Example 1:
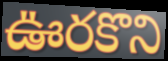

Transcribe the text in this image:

ఊరకొని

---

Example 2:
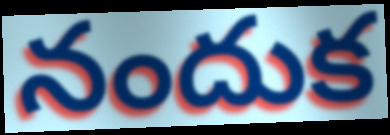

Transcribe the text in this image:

నందుక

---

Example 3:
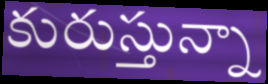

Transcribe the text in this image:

కురుస్తున్నా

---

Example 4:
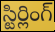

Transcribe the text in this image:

స్టిర్లింగ్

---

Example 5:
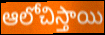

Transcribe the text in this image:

ఆలోచిస్తాయి